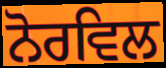
ਨੋਰਵਿਲ